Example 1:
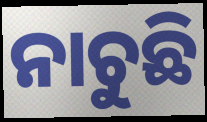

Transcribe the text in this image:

ନାଚୁଛି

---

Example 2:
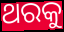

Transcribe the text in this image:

ଥରକୁ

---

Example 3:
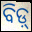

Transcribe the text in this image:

ବିଡ଼୍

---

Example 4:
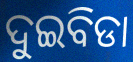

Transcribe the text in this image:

ଦୁଇବିଡା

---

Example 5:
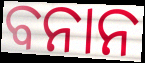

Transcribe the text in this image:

ବନାନ